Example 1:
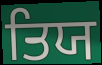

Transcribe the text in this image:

ਤਿਯ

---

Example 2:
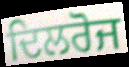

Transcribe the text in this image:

ਦਿਲਰੋਜ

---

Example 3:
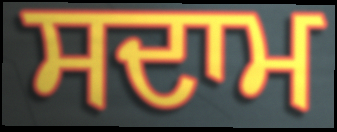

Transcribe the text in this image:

ਸਦਾਮ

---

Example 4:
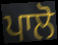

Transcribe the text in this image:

ਪਾਲੋ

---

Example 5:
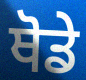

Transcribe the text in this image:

ਥੋਡੇ